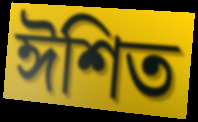
ঈশিত